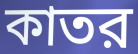
কাতর